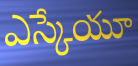
ఎస్కేయూ